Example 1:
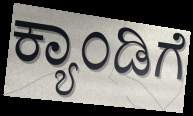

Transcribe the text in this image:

ಕ್ಯಾಂಡಿಗೆ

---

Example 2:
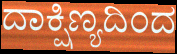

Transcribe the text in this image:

ದಾಕ್ಷಿಣ್ಯದಿಂದ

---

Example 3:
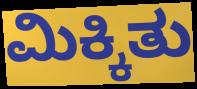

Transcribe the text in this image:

ಮಿಕ್ಕಿತು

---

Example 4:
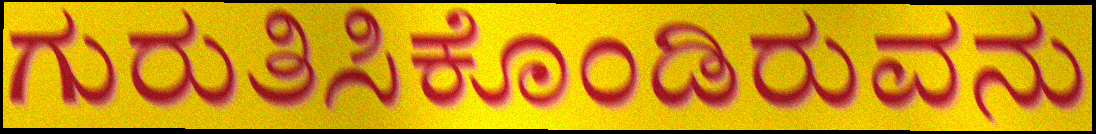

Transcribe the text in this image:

ಗುರುತಿಸಿಕೊಂಡಿರುವನು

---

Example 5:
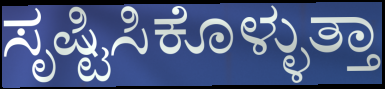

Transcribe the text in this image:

ಸೃಷ್ಟಿಸಿಕೊಳ್ಳುತ್ತಾ